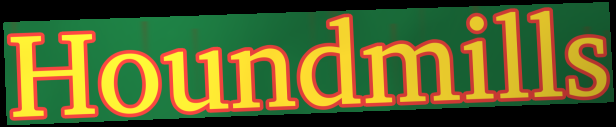
Houndmills